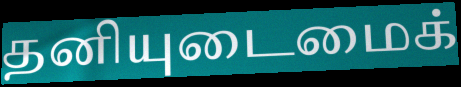
தனியுடைமைக்